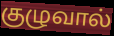
குழுவால்